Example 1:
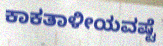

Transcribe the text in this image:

ಕಾಕತಾಳೀಯವಷ್ಟೆ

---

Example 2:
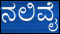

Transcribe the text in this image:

ನಲಿವೈ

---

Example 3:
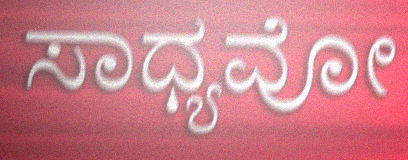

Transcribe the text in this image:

ಸಾಧ್ಯವೋ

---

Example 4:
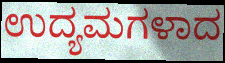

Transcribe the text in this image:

ಉದ್ಯಮಗಳಾದ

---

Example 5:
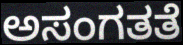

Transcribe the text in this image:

ಅಸಂಗತತೆ